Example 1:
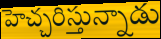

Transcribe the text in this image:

హెచ్చరిస్తున్నాడు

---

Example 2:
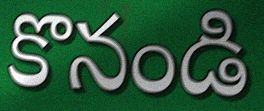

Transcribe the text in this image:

కొనండి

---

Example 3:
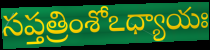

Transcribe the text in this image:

సప్తత్రింశోఽధ్యాయః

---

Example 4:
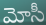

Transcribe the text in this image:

మోసీ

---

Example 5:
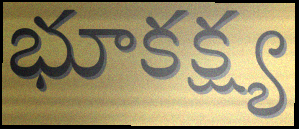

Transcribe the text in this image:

భూకక్ష్య